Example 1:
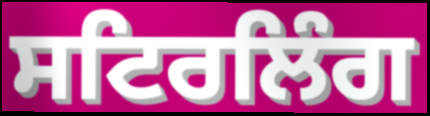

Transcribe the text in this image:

ਸਟਿਰਲਿੰਗ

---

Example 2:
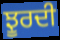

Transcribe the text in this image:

ਝੂਰਦੀ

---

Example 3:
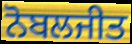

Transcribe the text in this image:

ਨੋਬਲਜੀਤ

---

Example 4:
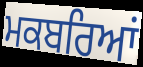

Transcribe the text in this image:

ਮਕਬਰਿਆਂ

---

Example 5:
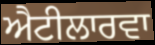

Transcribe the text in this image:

ਐਟੀਲਾਰਵਾ